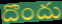
దొందు